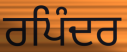
ਰਪਿੰਦਰ